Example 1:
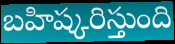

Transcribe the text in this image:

బహిష్కరిస్తుంది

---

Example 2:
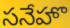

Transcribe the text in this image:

సనేహొ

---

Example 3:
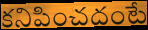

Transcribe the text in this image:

కనిపించదంటే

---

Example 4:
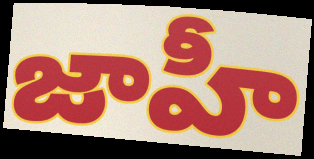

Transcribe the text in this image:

జాహీ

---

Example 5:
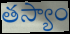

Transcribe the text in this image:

తస్యాం